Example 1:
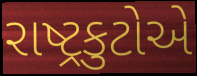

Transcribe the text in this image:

રાષ્ટ્રકુટોએ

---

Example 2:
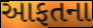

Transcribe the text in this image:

આફતના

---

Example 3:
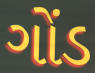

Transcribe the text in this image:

ગોંડ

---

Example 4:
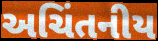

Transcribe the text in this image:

અચિંતનીય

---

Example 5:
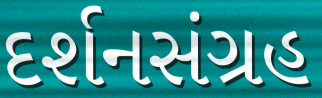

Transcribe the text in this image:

દર્શનસંગ્રહ